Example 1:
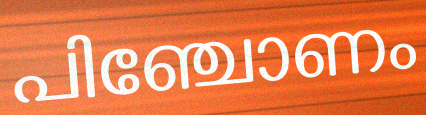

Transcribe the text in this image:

പിഞ്ചോണം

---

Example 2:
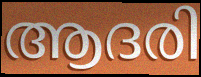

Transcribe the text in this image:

ആദരി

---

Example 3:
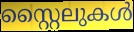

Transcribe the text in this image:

സ്റ്റൈലുകൾ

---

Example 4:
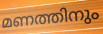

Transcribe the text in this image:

മണത്തിനും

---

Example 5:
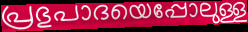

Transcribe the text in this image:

പ്രഭുപാദയെപ്പോലുള്ള